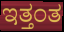
ಇತ್ತಂತ